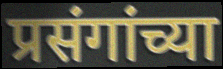
प्रसंगांच्या